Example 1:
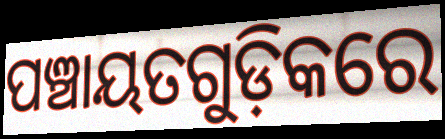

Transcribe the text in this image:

ପଞ୍ଚାୟତଗୁଡ଼ିକରେ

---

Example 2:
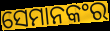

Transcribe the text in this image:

ସେମାନକଂର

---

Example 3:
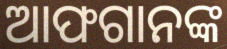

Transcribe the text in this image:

ଆଫଗାନଙ୍କ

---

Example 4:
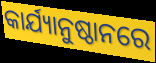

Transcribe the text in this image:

କାର୍ଯ୍ୟାନୁଷ୍ଠାନରେ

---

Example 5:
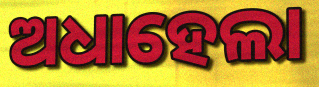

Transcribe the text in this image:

ଅଧାହେଲା